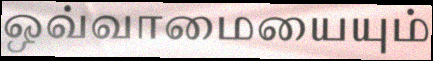
ஒவ்வாமையையும்